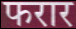
फरार